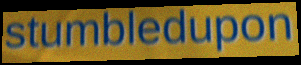
stumbledupon